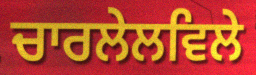
ਚਾਰਲੇਲਵਿਲੇ